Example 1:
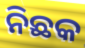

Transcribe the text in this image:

ନିଛକ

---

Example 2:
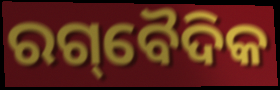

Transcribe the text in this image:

ରଗ୍‌ବୈଦିକ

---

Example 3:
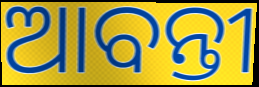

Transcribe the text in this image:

ଆବନ୍ତୀ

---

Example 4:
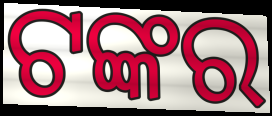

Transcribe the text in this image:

ଟଙ୍କର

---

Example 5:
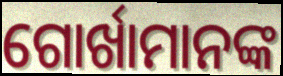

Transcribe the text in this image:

ଗୋର୍ଖାମାନଙ୍କ